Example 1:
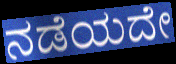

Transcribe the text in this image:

ನಡೆಯದೇ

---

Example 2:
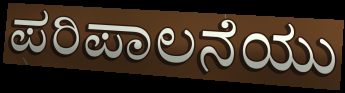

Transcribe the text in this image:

ಪರಿಪಾಲನೆಯು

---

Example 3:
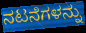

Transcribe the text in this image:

ನಟನೆಗಳನ್ನು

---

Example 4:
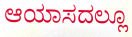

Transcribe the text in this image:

ಆಯಾಸದಲ್ಲೂ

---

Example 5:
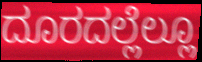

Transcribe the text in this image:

ದೂರದಲ್ಲೆಲ್ಲೂ